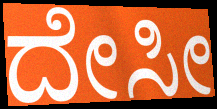
ದೇಸೀ